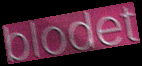
blodet